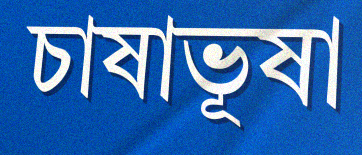
চাষাভূষা